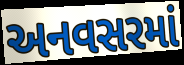
અનવસરમાં